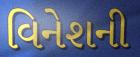
વિનેશની